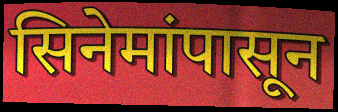
सिनेमांपासून